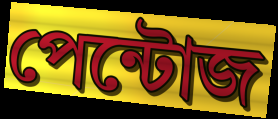
পেন্টোজ